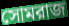
সোমরাজ